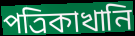
পত্রিকাখানি